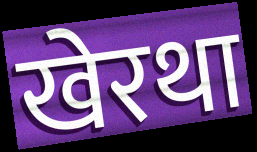
खेरथा